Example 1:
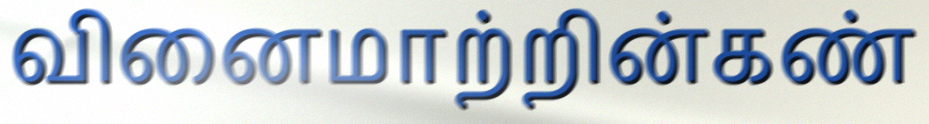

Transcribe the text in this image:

வினைமாற்றின்கண்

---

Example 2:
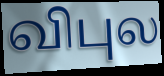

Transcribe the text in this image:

விபுல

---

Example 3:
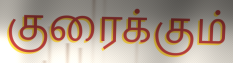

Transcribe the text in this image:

குரைக்கும்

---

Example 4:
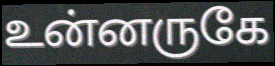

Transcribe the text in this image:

உன்னருகே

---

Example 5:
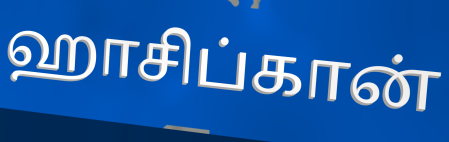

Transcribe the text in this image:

ஹாசிப்கான்